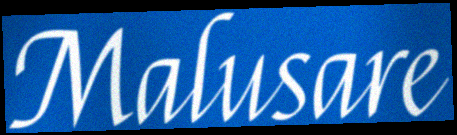
Malusare